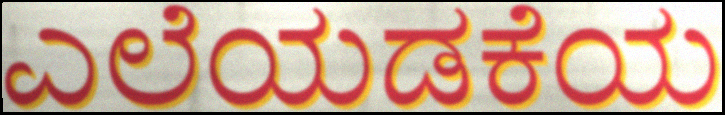
ಎಲೆಯಡಕೆಯ